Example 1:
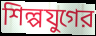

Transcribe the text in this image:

শিল্পযুগের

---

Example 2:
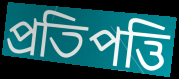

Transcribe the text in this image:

প্রতিপত্তি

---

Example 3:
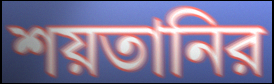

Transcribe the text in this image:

শয়তানির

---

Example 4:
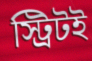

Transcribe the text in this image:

স্ট্রিটই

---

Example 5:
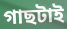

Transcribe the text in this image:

গাছটাই